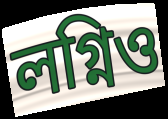
লগ্নিও